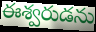
ఈశ్వరుడను